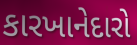
કારખાનેદારો